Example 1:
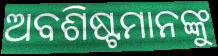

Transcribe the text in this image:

ଅବଶିଷ୍ଟମାନଙ୍କୁ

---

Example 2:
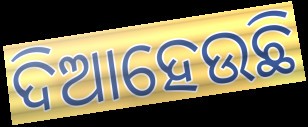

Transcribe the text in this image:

ଦିଆହେଉଛି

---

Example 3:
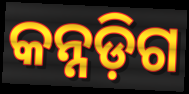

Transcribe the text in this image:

କନ୍ନଡ଼ିଗ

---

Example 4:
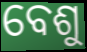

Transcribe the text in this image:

ବେଶୁ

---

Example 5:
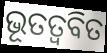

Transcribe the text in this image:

ଭୂତତ୍ଵବିତ